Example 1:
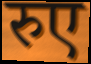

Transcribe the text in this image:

रुए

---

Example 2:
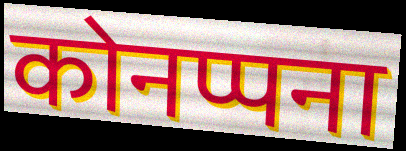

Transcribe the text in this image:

कोनप्पना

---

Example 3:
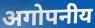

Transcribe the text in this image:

अगोपनीय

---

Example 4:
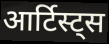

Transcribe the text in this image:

आर्टिस्ट्स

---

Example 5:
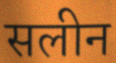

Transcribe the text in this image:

सलीन